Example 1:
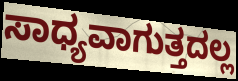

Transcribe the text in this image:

ಸಾಧ್ಯವಾಗುತ್ತದಲ್ಲ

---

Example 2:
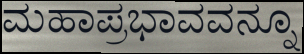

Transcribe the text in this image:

ಮಹಾಪ್ರಭಾವವನ್ನೂ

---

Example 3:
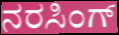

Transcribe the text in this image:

ನರಸಿಂಗ್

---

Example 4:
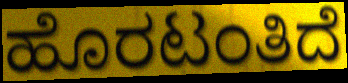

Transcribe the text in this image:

ಹೊರಟಂತಿದೆ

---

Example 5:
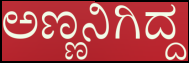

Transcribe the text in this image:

ಅಣ್ಣನಿಗಿದ್ದ